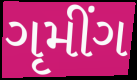
ગૃમીંગ